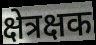
क्षेत्रक्षक